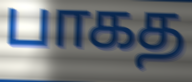
பாகத